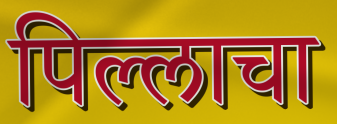
पिल्लाचा